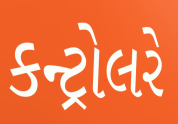
કન્ટ્રોલરે